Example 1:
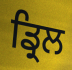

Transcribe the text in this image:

ਡ੍ਰਿਲ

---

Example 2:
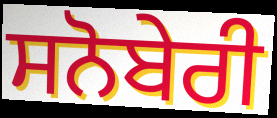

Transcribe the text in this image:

ਸਨੋਬੇਰੀ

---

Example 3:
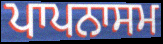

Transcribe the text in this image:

ਪਾਪਨਾਸਮ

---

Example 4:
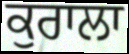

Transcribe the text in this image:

ਕੁਰਾਲਾ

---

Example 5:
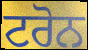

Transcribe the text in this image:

ਟਰੋਨ